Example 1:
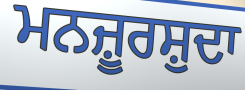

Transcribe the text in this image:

ਮਨਜ਼ੂਰਸ਼ੁਦਾ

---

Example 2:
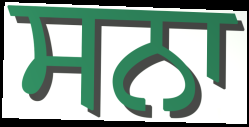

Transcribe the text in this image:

ਸਨਾ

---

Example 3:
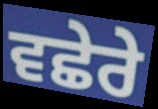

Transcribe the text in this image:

ਵਛੇਰੇ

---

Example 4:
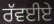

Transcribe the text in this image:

ਰੱਵਈਏ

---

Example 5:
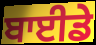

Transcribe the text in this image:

ਬਾਈਡੇ